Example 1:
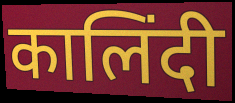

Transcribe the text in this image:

कालिंदी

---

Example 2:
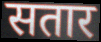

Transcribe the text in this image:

सतार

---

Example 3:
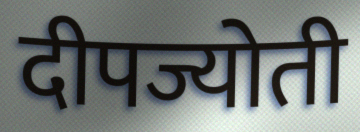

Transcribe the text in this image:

दीपज्योती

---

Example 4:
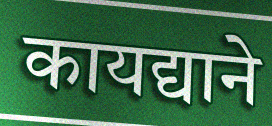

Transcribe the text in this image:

कायद्याने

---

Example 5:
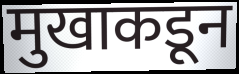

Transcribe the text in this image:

मुखाकडून